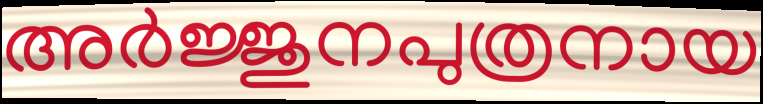
അർജ്ജുനപുത്രനായ